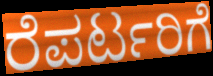
ರೆಪರ್ಟರಿಗೆ